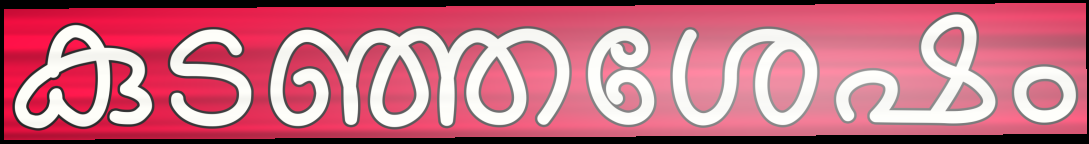
കുടഞ്ഞശേഷം